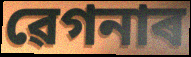
ৱেগনাৰ